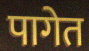
पागेत